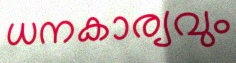
ധനകാര്യവും